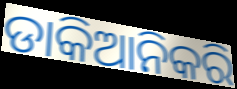
ଡାକିଆନିକରି